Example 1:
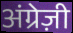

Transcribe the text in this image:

अंग्रेज़ी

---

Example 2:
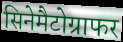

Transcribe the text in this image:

सिनेमैटोग्राफर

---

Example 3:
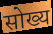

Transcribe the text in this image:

सोख्य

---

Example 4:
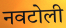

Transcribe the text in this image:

नवटोली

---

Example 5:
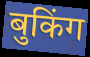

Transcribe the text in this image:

बुकिंग